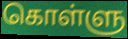
கொள்ளு